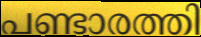
പണ്ടാരത്തി